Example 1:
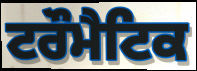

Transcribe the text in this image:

ਟਰੌਮੈਟਿਕ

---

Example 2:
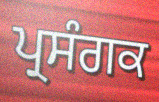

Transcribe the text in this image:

ਪ੍ਰਸੰਗਕ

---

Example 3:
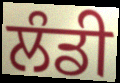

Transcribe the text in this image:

ਲੰਡੀ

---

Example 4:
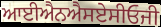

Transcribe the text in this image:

ਆਈਐਨਐਸਏਸੀਓਜੀ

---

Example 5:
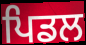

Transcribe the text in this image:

ਪਿਡਲ